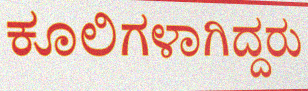
ಕೂಲಿಗಳಾಗಿದ್ದರು